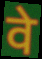
वे